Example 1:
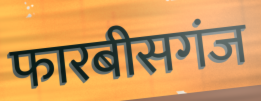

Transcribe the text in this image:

फारबीसगंज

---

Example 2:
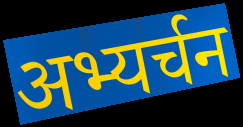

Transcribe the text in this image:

अभ्यर्चन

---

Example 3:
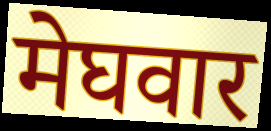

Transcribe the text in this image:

मेघवार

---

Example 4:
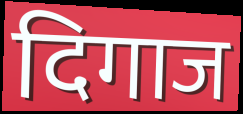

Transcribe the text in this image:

दिगाज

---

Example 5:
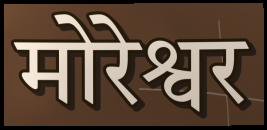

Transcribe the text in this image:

मोरेश्वर